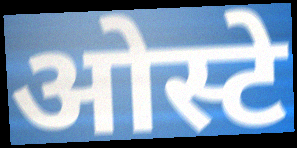
ओस्टे